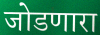
जोडणारा